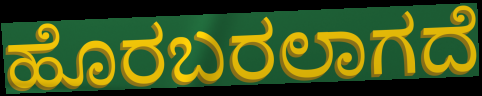
ಹೊರಬರಲಾಗದೆ